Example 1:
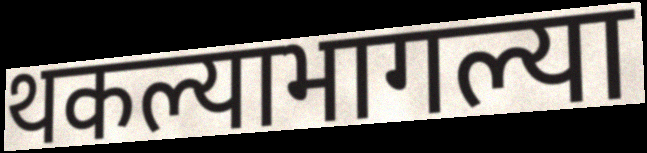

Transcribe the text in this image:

थकल्याभागल्या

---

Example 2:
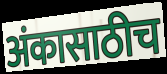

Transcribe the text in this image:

अंकासाठीच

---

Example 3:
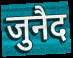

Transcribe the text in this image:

जुनैद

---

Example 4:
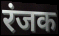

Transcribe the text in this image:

रंजक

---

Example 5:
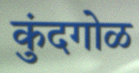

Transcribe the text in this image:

कुंदगोळ